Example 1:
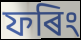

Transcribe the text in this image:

ফৰিং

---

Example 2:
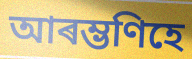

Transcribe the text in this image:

আৰম্ভণিহে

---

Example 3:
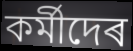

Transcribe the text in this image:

কৰ্মীদেৰ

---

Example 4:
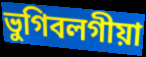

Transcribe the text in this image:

ভুগিবলগীয়া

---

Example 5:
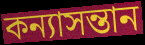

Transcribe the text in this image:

কন্যাসন্তান